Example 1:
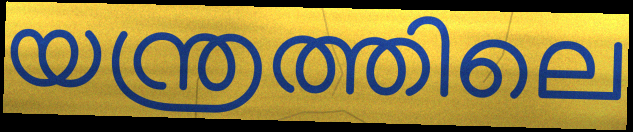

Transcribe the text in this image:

യന്ത്രത്തിലെ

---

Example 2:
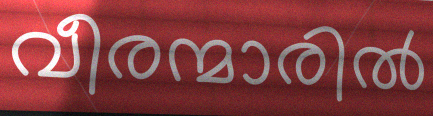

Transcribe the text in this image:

വീരന്മാരിൽ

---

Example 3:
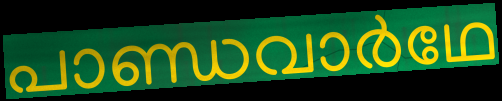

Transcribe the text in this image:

പാണ്ഡവാർഥേ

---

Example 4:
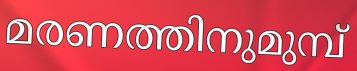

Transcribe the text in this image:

മരണത്തിനുമുമ്പ്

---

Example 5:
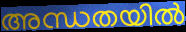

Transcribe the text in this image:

അന്ധതയിൽ